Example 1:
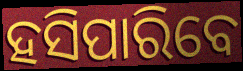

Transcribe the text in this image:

ହସିପାରିବେ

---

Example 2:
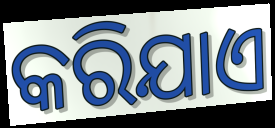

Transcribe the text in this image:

କରିଯାଏ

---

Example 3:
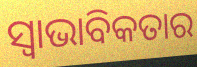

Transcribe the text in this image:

ସ୍ଵାଭାବିକତାର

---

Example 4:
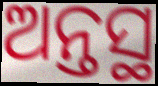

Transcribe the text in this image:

ଅନ୍ତସ୍ଥ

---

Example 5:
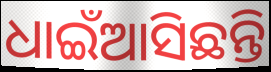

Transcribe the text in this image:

ଧାଇଁଆସିଛନ୍ତି